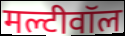
मल्टीवॉल